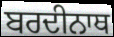
ਬਰਦੀਨਾਥ